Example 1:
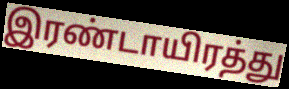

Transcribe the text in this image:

இரண்டாயிரத்து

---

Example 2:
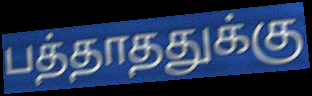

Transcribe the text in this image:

பத்தாததுக்கு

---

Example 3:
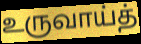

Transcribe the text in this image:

உருவாய்த்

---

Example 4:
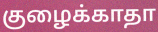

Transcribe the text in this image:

குழைக்காதா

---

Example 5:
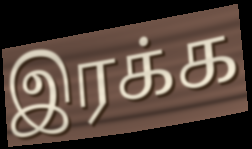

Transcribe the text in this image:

இரக்க